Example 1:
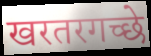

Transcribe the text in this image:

खरतरगच्छे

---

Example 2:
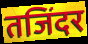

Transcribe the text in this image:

तजिंदर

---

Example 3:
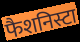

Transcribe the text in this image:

फैशनिस्टा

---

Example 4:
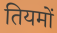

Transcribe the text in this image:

तियमों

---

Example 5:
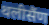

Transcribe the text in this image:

थलीसैंण